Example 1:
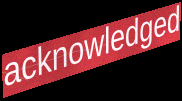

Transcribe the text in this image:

acknowledged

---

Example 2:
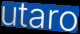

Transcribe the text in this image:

utaro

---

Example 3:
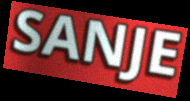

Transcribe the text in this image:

SANJE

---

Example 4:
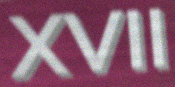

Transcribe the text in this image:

XVII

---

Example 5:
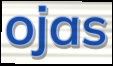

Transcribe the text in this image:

ojas